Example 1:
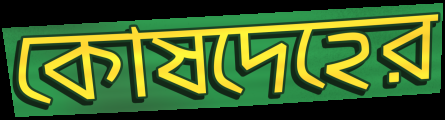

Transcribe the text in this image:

কোষদেহের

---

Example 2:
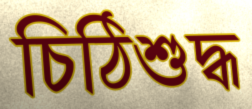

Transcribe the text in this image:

চিঠিশুদ্ধ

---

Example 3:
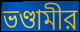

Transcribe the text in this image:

ভণ্ডামীর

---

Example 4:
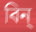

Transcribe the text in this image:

বিন্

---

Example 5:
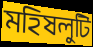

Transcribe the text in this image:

মহিষলুটি